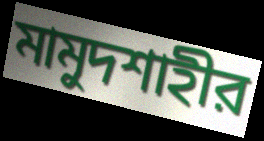
মামুদশাহীর